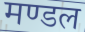
मण्डल